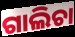
ଗାଲିଚା